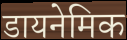
डायनेमिक